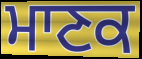
ਮਾਣਕ